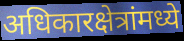
अधिकारक्षेत्रांमध्ये